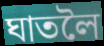
ঘাতলৈ